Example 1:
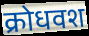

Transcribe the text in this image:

क्रोधवश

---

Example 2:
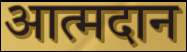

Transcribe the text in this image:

आत्मदान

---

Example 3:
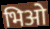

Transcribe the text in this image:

भिओ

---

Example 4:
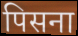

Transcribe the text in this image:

पिसना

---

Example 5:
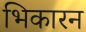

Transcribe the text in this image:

भिकारन